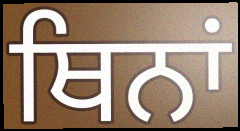
ਥਿਨਾਂ